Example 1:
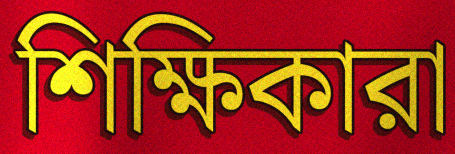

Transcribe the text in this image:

শিক্ষিকারা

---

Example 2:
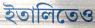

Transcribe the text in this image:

ইতালিতেও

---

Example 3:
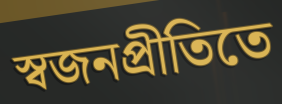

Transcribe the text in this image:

স্বজনপ্রীতিতে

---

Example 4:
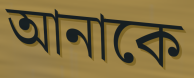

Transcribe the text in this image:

আনাকে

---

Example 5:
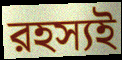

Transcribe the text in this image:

রহস্যই